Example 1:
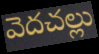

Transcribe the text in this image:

వెదచల్లు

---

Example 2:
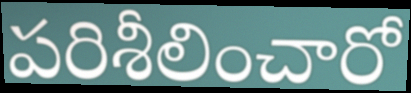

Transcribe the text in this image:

పరిశీలించారో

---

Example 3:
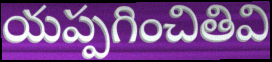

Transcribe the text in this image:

యప్పగించితివి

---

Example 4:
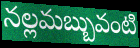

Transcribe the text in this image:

నల్లమబ్బువంటి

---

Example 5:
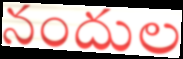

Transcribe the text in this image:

నందుల